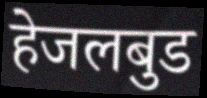
हेजलबुड